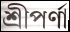
শ্রীপর্ণা